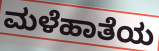
ಮಳೆಹಾತೆಯ